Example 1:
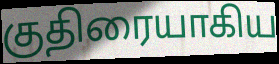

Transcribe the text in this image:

குதிரையாகிய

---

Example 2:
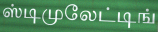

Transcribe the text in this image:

ஸ்டிமுலேட்டிங்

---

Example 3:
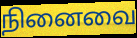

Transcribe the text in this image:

நினைவை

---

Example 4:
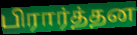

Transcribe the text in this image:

பிரார்த்தன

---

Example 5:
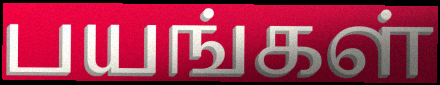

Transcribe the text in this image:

பயங்கள்